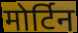
मोर्टिन